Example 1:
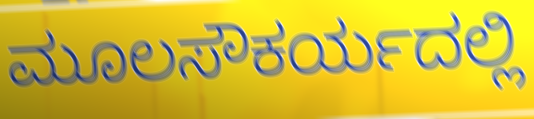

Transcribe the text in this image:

ಮೂಲಸೌಕರ್ಯದಲ್ಲಿ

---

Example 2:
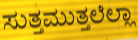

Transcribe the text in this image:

ಸುತ್ತಮುತ್ತಲೆಲ್ಲಾ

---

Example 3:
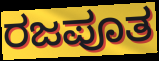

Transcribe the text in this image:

ರಜಪೂತ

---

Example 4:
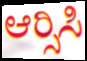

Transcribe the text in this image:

ಆರ್‍ಸಿಸಿ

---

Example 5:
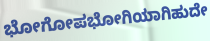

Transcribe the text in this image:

ಭೋಗೋಪಭೋಗಿಯಾಗಿಹುದೇ